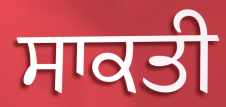
ਸਾਕਤੀ